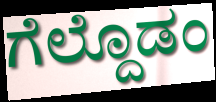
ಗೆಲ್ದೊಡಂ